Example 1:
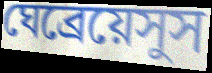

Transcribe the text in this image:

ঘেব্রেয়েসুস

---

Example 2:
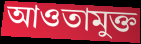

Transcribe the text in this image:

আওতামুক্ত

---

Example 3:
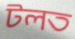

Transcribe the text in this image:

টলত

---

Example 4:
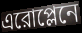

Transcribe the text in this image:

এরোপ্লেনে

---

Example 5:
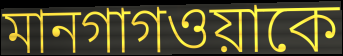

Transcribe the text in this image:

মানগাগওয়াকে